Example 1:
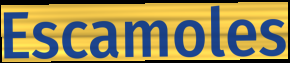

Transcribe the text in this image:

Escamoles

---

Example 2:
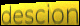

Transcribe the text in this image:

descion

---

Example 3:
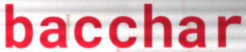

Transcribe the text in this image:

bacchar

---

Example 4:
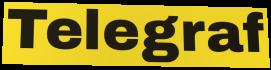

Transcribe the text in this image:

Telegraf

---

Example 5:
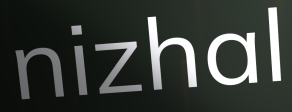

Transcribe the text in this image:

nizhal